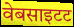
वेबसाइटट